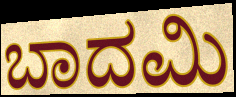
ಬಾದಮಿ